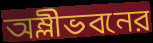
অম্লীভবনের